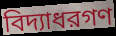
বিদ্যাধরগণ